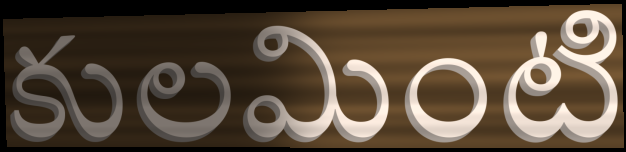
కులమింటి